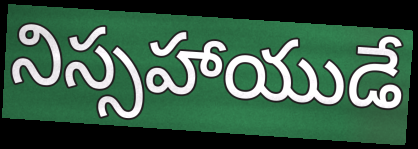
నిస్సహాయుడే